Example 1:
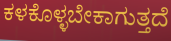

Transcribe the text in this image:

ಕಳಕೊಳ್ಳಬೇಕಾಗುತ್ತದೆ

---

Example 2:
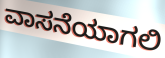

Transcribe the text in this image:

ವಾಸನೆಯಾಗಲಿ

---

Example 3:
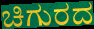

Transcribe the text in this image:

ಚಿಗುರದ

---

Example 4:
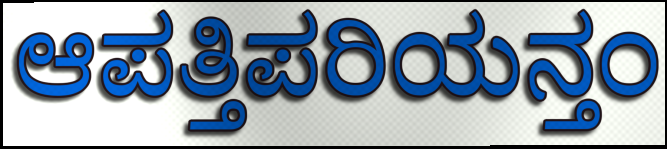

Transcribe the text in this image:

ಆಪತ್ತಿಪರಿಯನ್ತಂ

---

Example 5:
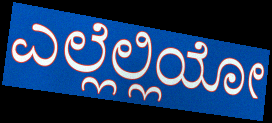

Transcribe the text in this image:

ಎಲ್ಲೆಲ್ಲಿಯೋ